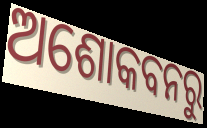
ଅଶୋକବନରୁ